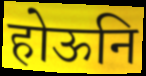
होऊनि